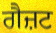
ਗੈਜ਼ਟ